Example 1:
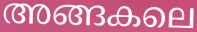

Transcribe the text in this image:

അങ്ങകലെ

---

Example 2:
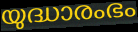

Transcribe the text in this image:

യുദ്ധാരംഭം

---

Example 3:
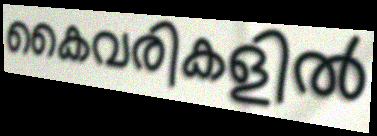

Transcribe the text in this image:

കൈവരികളിൽ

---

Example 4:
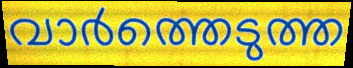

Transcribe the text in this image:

വാർത്തെടുത്ത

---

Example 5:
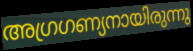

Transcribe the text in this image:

അഗ്രഗണ്യനായിരുന്നു